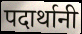
पदार्थानी